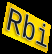
Rbi